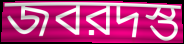
জবরদস্ত